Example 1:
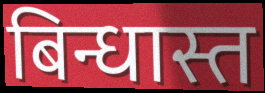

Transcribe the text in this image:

बिन्धास्त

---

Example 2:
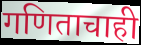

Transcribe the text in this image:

गणिताचाही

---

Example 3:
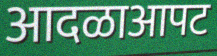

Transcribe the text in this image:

आदळाआपट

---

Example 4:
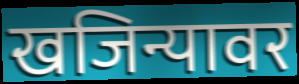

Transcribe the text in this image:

खजिन्यावर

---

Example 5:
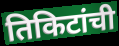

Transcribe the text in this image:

तिकिटांची